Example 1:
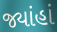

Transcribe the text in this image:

જ્યાંહાં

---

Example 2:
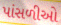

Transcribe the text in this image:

પાંસળીઓ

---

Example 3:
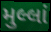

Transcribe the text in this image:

મુલ્લાં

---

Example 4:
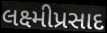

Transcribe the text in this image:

લક્ષ્મીપ્રસાદ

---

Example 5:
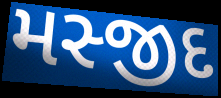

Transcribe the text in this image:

મસ્જીદ